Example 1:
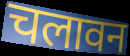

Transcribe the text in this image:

चलावन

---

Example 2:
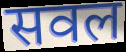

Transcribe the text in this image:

सवल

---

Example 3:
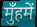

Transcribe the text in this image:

मुँहमें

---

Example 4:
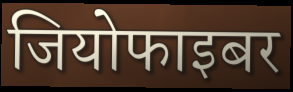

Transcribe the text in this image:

जियोफाइबर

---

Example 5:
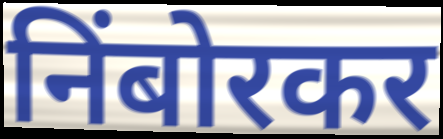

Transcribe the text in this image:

निंबोरकर